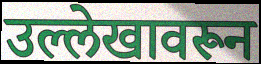
उल्लेखावरून